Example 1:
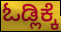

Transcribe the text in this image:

ಓಡ್ಲಿಕ್ಕೆ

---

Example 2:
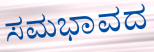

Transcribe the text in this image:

ಸಮಭಾವದ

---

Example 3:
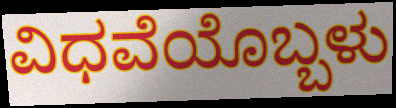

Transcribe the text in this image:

ವಿಧವೆಯೊಬ್ಬಳು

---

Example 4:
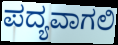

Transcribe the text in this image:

ಪದ್ಯವಾಗಲಿ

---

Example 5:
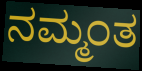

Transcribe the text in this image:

ನಮ್ಮಂತ